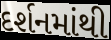
દર્શનમાંથી